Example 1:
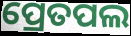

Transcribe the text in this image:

ପ୍ରେତପଲ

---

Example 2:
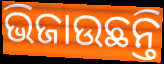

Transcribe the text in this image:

ଭିଜାଉଛନ୍ତି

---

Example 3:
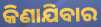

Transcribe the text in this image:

କିଣାଯିବାର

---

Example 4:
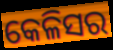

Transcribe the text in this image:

କେଳିସର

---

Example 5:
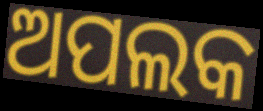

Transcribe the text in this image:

ଅପଲକ